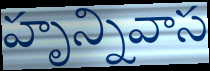
హృన్నివాస